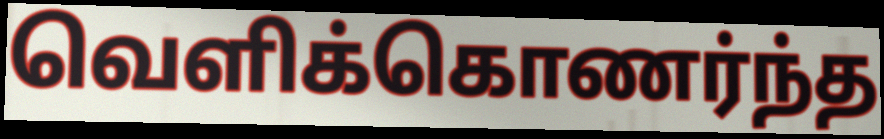
வெளிக்கொணர்ந்த